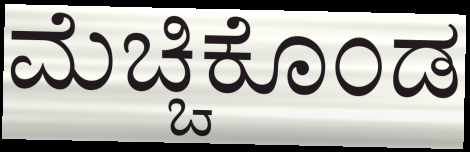
ಮೆಚ್ಚಿಕೊಂಡ